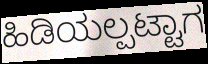
ಹಿಡಿಯಲ್ಪಟ್ಟಾಗ